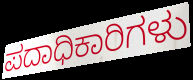
ಪದಾಧಿಕಾರಿಗಳು